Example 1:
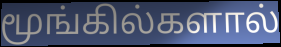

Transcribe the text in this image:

மூங்கில்களால்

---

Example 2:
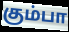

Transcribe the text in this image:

கும்பா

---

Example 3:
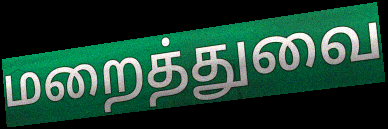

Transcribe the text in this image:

மறைத்துவை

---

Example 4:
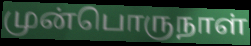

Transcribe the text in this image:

முன்பொருநாள்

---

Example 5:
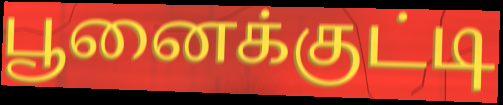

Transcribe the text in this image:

பூனைக்குட்டி